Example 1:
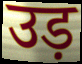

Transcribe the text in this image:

उड़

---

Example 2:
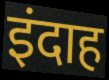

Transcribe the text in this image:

इंदाह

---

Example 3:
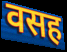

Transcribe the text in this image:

वसह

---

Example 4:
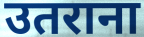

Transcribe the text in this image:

उतराना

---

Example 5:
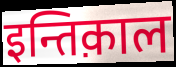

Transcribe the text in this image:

इन्तिक़ाल